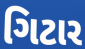
ગિટાર